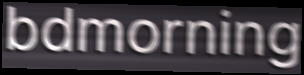
bdmorning